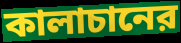
কালাচানের